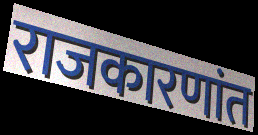
राजकारणांत